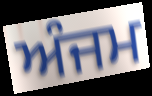
ਅੰਜਮ